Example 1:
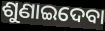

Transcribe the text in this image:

ଶୁଣାଇଦେବା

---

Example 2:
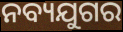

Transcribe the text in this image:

ନବ୍ୟଯୁଗର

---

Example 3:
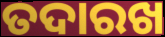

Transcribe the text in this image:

ତଦାରଖ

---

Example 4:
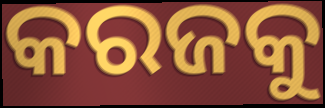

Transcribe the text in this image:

କରଜକୁ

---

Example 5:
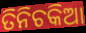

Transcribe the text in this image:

ତିନିଚକିଆ